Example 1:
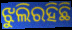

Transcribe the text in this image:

ଝୁଲିରହିଛି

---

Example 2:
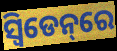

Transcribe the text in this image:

ସ୍ୱିଡେନ୍‌ରେ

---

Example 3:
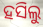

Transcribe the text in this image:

ହସିଲୁ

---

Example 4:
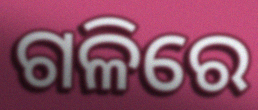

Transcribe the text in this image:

ଗଳିରେ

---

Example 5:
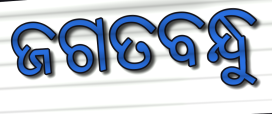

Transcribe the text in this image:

ଜଗତବନ୍ଧୁ